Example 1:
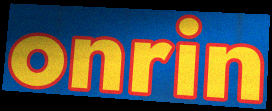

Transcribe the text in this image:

onrin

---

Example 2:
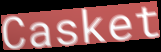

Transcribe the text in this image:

Casket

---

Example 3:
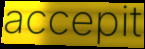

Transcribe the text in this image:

accepit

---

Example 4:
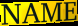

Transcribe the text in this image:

NAME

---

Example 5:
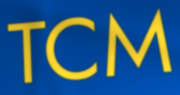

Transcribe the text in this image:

TCM